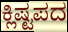
ಕ್ಲಿಷ್ಟಪದ